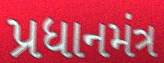
પ્રધાનમંત્ર